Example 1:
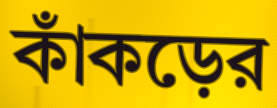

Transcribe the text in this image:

কাঁকড়ের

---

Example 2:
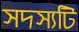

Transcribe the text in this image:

সদস্যটি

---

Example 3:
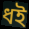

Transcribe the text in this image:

ধই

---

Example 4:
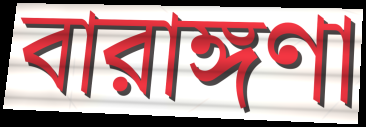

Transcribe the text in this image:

বারাঙ্গণা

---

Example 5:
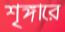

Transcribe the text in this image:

শৃঙ্গারে